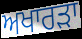
ਅਖਾਰੜਾ